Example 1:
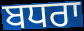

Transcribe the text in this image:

ਬਧਰਾ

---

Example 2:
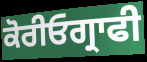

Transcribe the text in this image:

ਕੋਰੀਓਗ੍ਰਾਫੀ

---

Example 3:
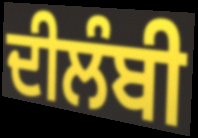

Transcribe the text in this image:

ਦੀਲੰਬੀ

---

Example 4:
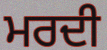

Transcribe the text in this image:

ਮਰਦੀ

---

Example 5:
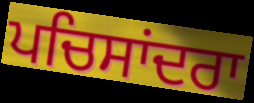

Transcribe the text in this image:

ਪਚਿਸਾਂਦਰਾ